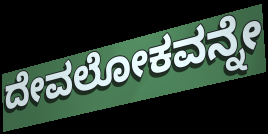
ದೇವಲೋಕವನ್ನೇ